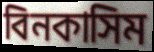
বিনকাসিম